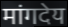
मांगदेय